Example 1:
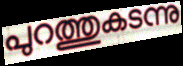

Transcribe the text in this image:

പുറത്തുകടന്നു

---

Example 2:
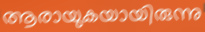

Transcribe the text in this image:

ആരായുകയായിരുന്നു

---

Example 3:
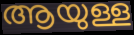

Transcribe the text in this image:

ആയുള്ള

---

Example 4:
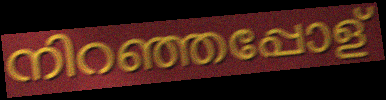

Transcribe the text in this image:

നിറഞ്ഞപ്പോള്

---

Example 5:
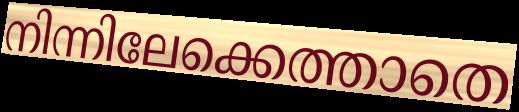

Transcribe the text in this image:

നിന്നിലേക്കെത്താതെ